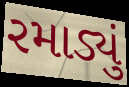
રમાડ્યું